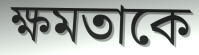
ক্ষমতাকে